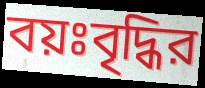
বয়ঃবৃদ্ধির